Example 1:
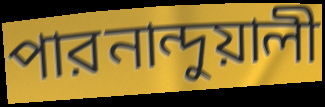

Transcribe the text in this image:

পারনান্দুয়ালী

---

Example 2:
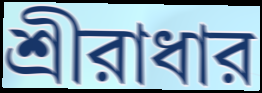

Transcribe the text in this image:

শ্রীরাধার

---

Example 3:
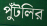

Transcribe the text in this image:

পুঁটলির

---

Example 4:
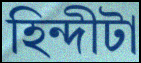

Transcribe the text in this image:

হিন্দীটা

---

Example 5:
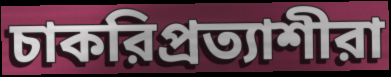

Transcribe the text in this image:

চাকরিপ্রত্যাশীরা